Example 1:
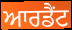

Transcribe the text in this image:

ਆਰਡੈਂਟ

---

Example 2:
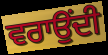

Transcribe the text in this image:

ਵਰਾਉਂਦੀ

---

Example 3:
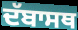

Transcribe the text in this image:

ਦੱਬਾਸਥ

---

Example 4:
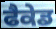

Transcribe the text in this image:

ਫੈਕੇਡ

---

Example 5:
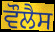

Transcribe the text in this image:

ਵੌਲੈਸ